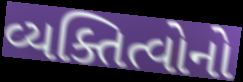
વ્યક્તિત્વોનો